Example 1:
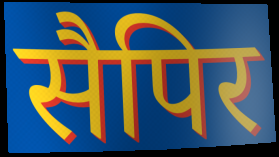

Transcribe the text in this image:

सैपिर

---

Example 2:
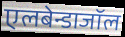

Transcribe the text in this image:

एलबेन्डाजॉल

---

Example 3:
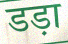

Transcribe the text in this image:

डड़ा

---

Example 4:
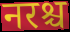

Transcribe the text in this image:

नरश्च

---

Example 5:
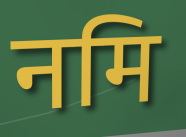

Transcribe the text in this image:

नमि